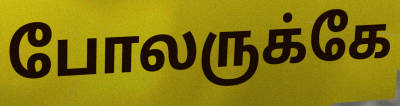
போலருக்கே